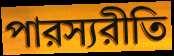
পারস্যরীতি